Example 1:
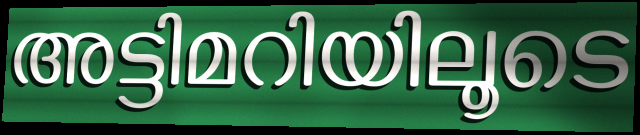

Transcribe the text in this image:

അട്ടിമറിയിലൂടെ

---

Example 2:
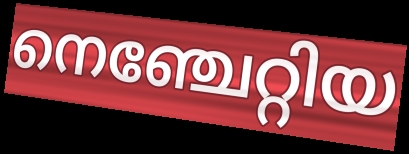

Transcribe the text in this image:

നെഞ്ചേറ്റിയ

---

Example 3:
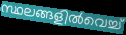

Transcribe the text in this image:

സ്ഥലങ്ങളിൽവെച്ച്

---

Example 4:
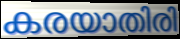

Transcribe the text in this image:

കരയാതിരി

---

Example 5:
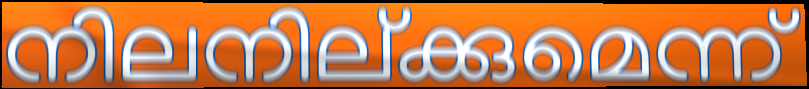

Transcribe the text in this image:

നിലനില്ക്കുമെന്ന്